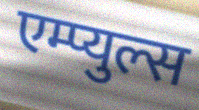
एम्प्युल्स